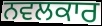
ਨਵਲਕਾਰ